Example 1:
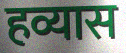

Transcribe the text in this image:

हव्यास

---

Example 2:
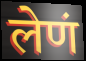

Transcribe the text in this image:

लेणं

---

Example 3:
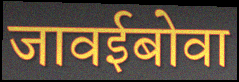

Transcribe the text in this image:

जावईबोवा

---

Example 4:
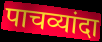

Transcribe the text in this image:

पाचव्यांदा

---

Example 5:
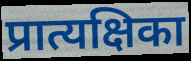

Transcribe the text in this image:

प्रात्यक्षिका